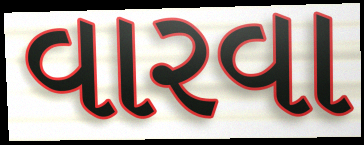
વારવા